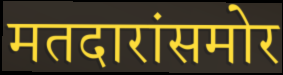
मतदारांसमोर